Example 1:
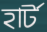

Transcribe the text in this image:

হার্ট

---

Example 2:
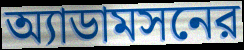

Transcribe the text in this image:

অ্যাডামসনের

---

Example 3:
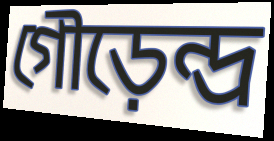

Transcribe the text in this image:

গৌড়েন্দ্র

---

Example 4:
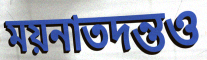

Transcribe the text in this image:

ময়নাতদন্তও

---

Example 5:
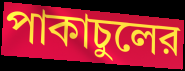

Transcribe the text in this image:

পাকাচুলের